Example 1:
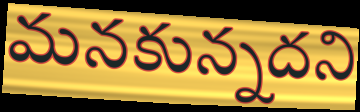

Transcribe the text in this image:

మనకున్నదని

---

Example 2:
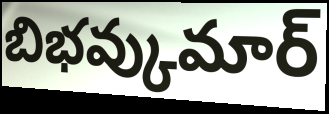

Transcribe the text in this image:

బిభవ్కుమార్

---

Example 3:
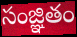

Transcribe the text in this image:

సంజ్ఞితం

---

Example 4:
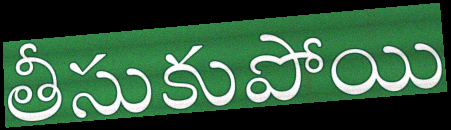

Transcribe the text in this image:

తీసుకుపోయి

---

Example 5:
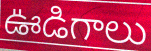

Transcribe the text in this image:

ఊడిగాలు